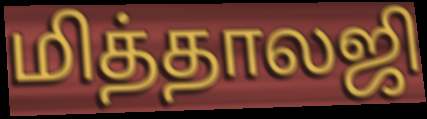
மித்தாலஜி